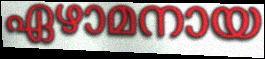
ഏഴാമനായ